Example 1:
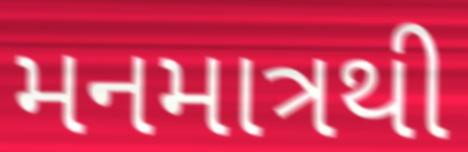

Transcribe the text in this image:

મનમાત્રથી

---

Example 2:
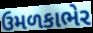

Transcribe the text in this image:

ઉમળકાભેર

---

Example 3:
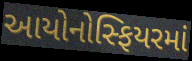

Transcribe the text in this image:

આયોનોસ્ફિયરમાં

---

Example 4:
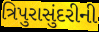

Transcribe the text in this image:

ત્રિપુરાસુંદરીની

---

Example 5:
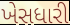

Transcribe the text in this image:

ખેસધારી